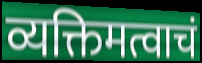
व्यक्तिमत्वाचं